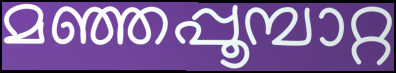
മഞ്ഞപ്പൂമ്പാറ്റ